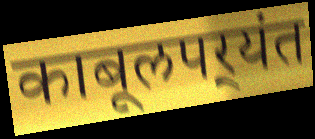
काबूलपर्यंत